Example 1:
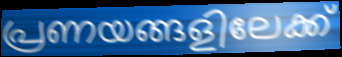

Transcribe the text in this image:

പ്രണയങ്ങളിലേക്ക്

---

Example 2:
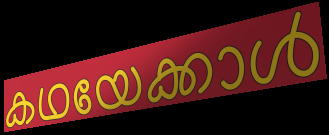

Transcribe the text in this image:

കഥയേക്കാൾ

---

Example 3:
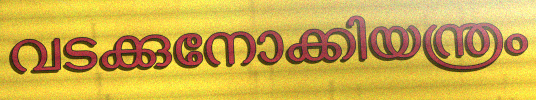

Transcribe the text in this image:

വടക്കുനോക്കിയന്ത്രം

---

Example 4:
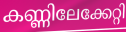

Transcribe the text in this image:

കണ്ണിലേക്കേറ്റി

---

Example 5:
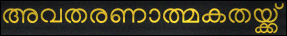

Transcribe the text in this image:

അവതരണാത്മകതയ്ക്ക്